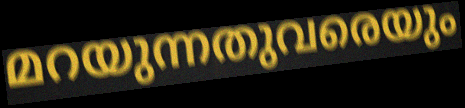
മറയുന്നതുവരെയും